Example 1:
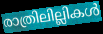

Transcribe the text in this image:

രാത്രിലില്ലികൾ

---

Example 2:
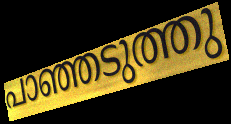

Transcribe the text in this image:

പാഞ്ഞടുത്തു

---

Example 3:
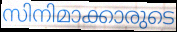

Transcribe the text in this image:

സിനിമാക്കാരുടെ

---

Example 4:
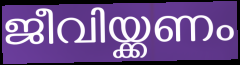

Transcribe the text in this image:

ജീവിയ്ക്കണം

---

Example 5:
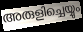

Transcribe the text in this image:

അരുളിച്ചെയ്യും